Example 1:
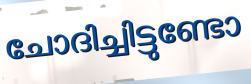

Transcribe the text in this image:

ചോദിച്ചിട്ടുണ്ടോ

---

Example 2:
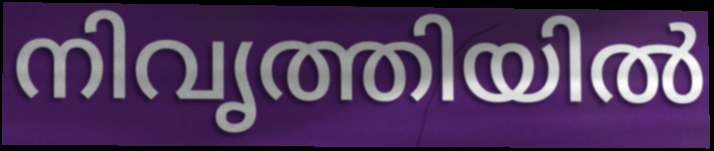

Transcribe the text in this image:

നിവൃത്തിയിൽ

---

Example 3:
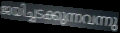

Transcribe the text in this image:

ജയിച്ചടക്കുന്നവന്നു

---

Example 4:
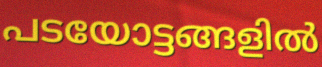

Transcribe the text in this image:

പടയോട്ടങ്ങളിൽ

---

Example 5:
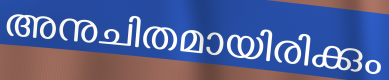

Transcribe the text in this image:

അനുചിതമായിരിക്കും